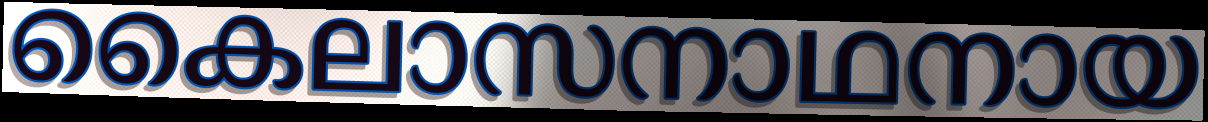
കൈലാസനാഥനായ